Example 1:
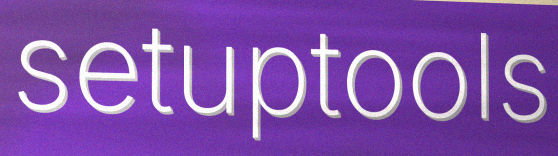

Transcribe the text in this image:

setuptools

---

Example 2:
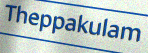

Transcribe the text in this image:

Theppakulam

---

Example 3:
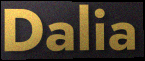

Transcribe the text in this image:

Dalia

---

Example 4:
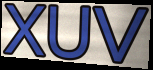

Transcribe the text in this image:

XUV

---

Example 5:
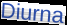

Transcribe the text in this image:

Diurna